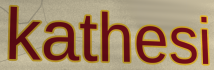
kathesi